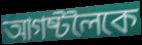
আগষ্টলৈকে